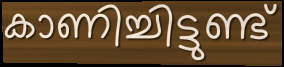
കാണിച്ചിട്ടുണ്ട്